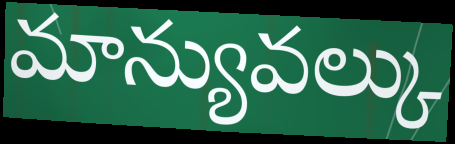
మాన్యువల్కు